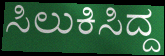
ಸಿಲುಕಿಸಿದ್ದ